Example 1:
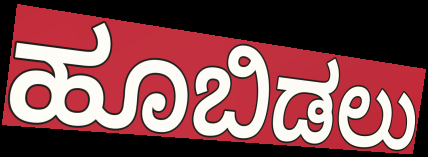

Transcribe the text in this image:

ಹೂಬಿಡಲು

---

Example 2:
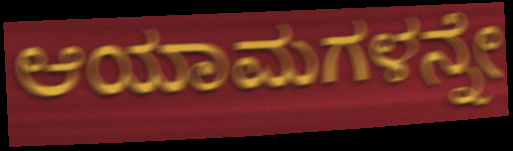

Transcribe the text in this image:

ಆಯಾಮಗಳನ್ನೇ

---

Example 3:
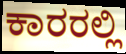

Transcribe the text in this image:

ಕಾರರಲ್ಲಿ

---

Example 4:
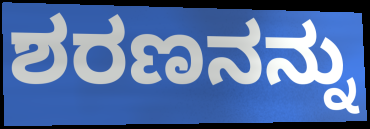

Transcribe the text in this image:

ಶರಣನನ್ನು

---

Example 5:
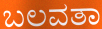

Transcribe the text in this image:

ಬಲವತಾ